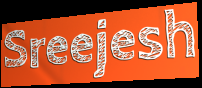
Sreejesh